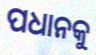
ପଧାନକୁ